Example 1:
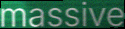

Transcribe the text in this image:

massive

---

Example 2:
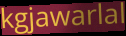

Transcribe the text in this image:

kgjawarlal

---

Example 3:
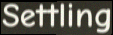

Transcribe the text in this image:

Settling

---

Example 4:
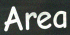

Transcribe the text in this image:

Area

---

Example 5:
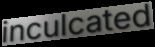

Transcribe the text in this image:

inculcated